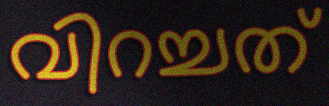
വിറച്ചത്